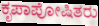
ಕೃಪಾಪೋಷಿತರು